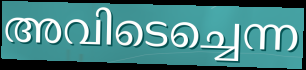
അവിടെച്ചെന്ന